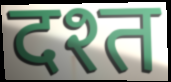
दश्त